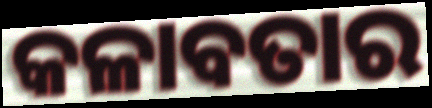
କଳାବତାର